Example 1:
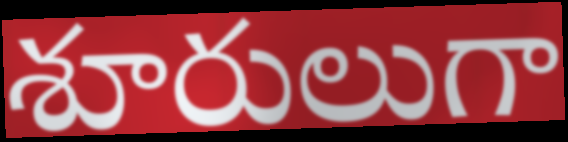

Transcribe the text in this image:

శూరులుగా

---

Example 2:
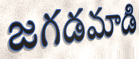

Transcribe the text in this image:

జగడమాడి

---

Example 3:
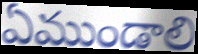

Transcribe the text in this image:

ఏముండాలి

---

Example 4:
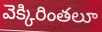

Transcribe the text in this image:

వెక్కిరింతలూ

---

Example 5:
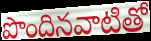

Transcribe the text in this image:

పొందినవాటితో